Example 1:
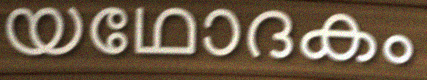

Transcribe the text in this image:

യഥോദകം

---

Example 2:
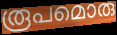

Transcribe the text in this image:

രൂപമൊരു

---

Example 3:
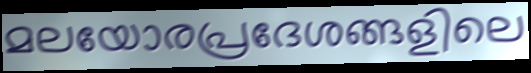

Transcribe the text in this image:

മലയോരപ്രദേശങ്ങളിലെ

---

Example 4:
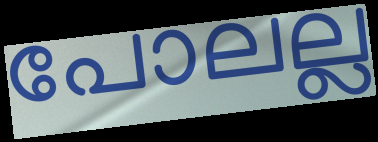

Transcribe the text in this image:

പോലല്ല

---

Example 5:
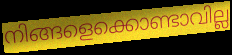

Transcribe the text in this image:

നിങ്ങളെക്കൊണ്ടാവില്ല